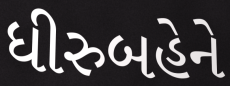
ધીરુબહેને